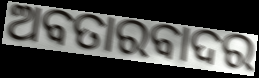
ଅବତାରବାଦର